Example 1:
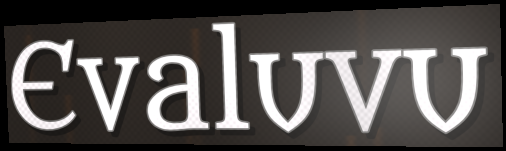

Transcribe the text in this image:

Evaluvu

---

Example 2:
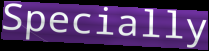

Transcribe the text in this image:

Specially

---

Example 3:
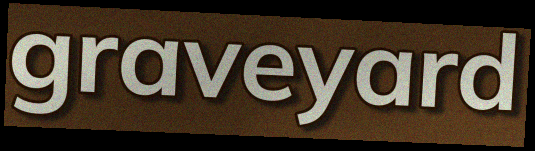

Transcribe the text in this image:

graveyard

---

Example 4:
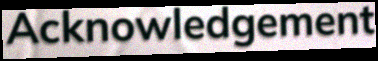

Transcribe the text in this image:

Acknowledgement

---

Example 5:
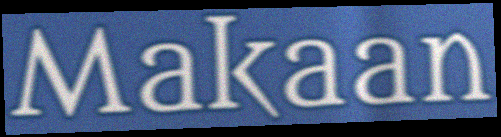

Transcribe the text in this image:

Makaan